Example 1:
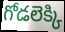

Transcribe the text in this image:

గోడలెక్కి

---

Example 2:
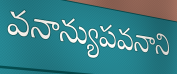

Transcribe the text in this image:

వనాన్యుపవనాని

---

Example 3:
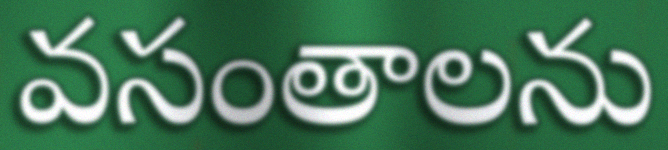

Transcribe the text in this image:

వసంతాలను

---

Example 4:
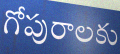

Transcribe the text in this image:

గోపురాలకు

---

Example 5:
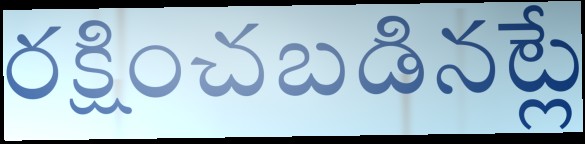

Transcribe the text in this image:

రక్షించబడినట్లే